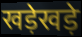
खड़ेखड़े